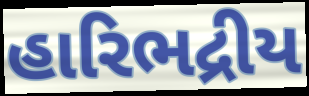
હારિભદ્રીય